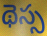
థెస్స